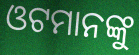
ଓଟମାନଙ୍କୁ